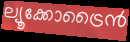
ല്യൂക്കോട്രൈൻ